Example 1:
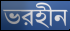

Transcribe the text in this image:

ভরহীন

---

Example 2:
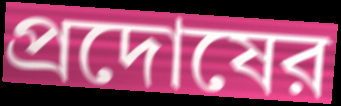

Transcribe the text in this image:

প্রদোষের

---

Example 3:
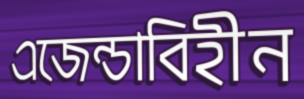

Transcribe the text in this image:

এজেন্ডাবিহীন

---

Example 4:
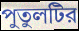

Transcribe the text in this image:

পুতুলটির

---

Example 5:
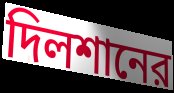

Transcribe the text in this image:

দিলশানের